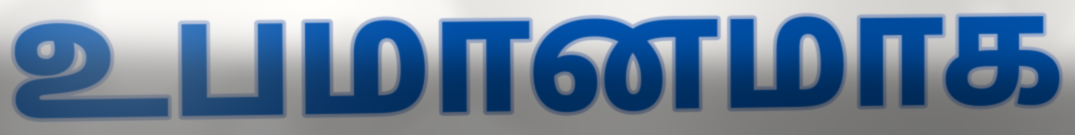
உபமானமாக